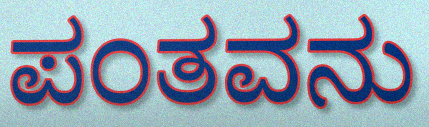
ಪಂತವನು